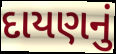
દાયણનું